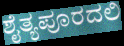
ಶೈತ್ಯಪೂರದಲಿ